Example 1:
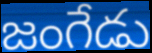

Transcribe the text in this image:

జంగేడు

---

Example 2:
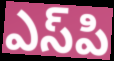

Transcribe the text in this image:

ఎస్‌పి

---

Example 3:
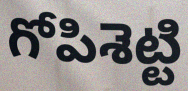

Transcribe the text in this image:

గోపిశెట్టి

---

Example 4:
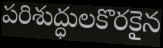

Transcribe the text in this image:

పరిశుద్ధులకొరకైన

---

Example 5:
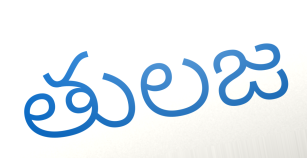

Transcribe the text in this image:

తులజ